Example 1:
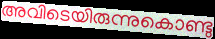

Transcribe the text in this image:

അവിടെയിരുന്നുകൊണ്ടു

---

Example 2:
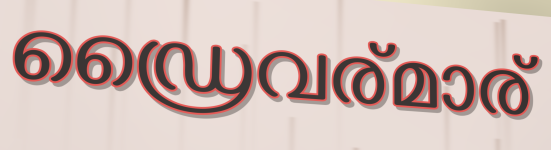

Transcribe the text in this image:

ഡ്രൈവര്മാര്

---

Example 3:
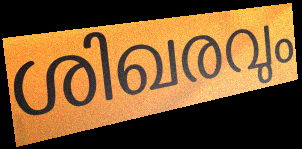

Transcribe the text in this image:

ശിഖരവും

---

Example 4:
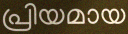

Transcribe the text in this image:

പ്രിയമായ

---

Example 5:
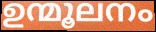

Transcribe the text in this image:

ഉന്മൂലനം